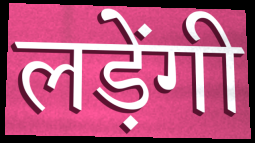
लड़ेंगी